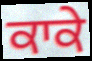
ਕਾਕੇ